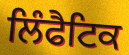
ਲਿੰਫੈਟਿਕ